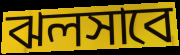
ঝলসাবে